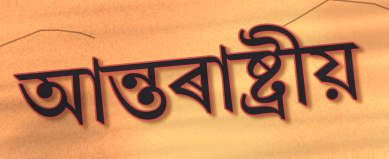
আন্তৰাষ্ট্ৰীয়